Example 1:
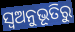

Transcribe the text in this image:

ସ୍ୱଅନୁଭୂତିରୁ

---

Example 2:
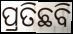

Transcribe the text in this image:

ପ୍ରତିଛବି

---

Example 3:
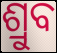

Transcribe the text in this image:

ଶ୍ରୁବ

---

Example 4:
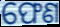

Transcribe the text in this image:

ଫେଣ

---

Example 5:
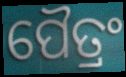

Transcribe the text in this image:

ପୈତ୍ରଂ